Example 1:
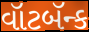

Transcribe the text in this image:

વૉટબૅન્ક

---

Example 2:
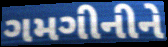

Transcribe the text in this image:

ગમગીનીને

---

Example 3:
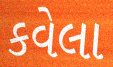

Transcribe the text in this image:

કવેલા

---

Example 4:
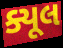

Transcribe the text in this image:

ક્યૂલ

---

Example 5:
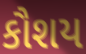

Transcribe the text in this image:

કૌશય